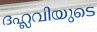
ദഹ്ലവിയുടെ